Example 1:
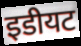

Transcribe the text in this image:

इडीयट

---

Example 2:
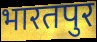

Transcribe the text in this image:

भारतपुर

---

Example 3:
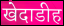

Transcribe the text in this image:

खेदाडीह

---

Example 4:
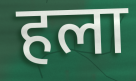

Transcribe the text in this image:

हला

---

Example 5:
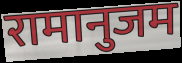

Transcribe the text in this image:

रामानुजम